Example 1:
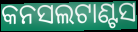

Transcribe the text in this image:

କନସଲଟାଣ୍ଟସ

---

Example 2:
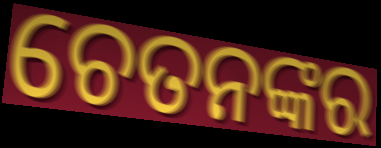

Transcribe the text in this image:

ଚେତନଙ୍କର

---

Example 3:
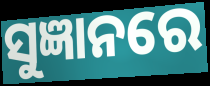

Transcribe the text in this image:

ସୁଜ୍ଞାନରେ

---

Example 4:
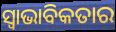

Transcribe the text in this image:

ସ୍ୱାଭାବିକତାର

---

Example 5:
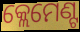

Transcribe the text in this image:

କ୍ଲେମେଣ୍ଟ